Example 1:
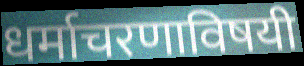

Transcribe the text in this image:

धर्माचरणाविषयी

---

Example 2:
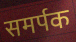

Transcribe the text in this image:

समर्पक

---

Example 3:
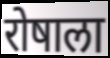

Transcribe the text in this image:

रोषाला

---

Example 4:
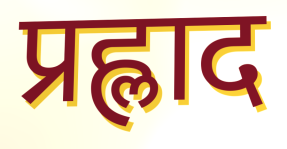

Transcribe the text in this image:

प्रह्लाद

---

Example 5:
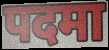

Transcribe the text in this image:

पदमा